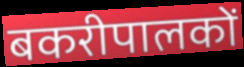
बकरीपालकों